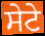
ਸੇਟੇ